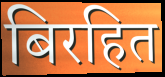
बिरहित